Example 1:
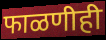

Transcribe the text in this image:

फाळणीही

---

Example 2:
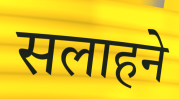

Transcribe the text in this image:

सलाहने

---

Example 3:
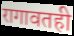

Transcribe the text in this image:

रागावतही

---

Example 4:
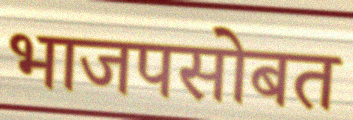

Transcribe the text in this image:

भाजपसोबत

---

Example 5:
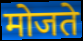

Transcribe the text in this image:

मोजते